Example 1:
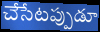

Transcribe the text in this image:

చేసేటప్పుడూ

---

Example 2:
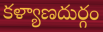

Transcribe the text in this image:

కళ్యాణదుర్గం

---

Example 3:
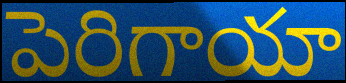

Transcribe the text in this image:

పెరిగాయా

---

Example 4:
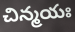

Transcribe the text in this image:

చిన్మయః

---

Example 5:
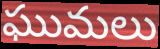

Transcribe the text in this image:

ఘుమలు